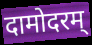
दामोदरम्